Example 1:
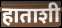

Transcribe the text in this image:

हाताशी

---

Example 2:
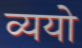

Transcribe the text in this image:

व्ययो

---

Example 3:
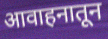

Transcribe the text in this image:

आवाहनातून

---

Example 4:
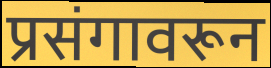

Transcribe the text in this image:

प्रसंगावरून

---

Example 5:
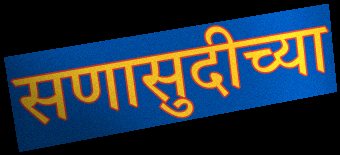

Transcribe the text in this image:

सणासुदीच्या